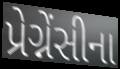
પ્રેગ્નેંસીના